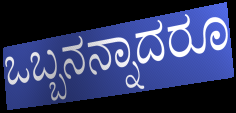
ಒಬ್ಬನನ್ನಾದರೂ